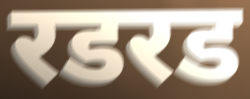
रडरड